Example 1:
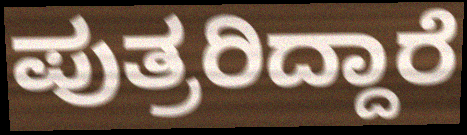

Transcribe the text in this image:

ಪುತ್ರರಿದ್ದಾರೆ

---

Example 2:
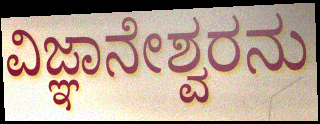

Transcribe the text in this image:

ವಿಜ್ಞಾನೇಶ್ವರನು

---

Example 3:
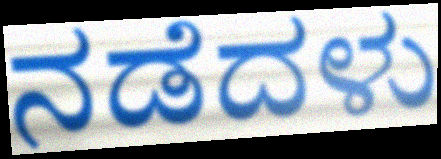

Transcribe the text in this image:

ನಡೆದಳು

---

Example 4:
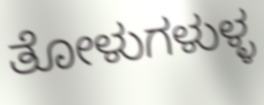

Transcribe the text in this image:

ತೋಳುಗಳುಳ್ಳ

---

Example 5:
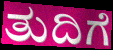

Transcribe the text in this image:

ತುದಿಗೆ